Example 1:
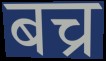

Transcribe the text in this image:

बच्र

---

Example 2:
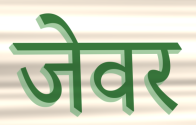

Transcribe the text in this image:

जेवर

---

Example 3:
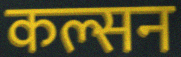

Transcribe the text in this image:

कल्सन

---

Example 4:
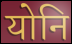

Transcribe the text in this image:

योनि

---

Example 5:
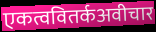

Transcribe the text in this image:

एकत्ववितर्कअवीचार